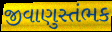
જીવાણુસ્તંભક